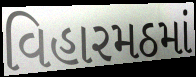
વિહારમઠમાં